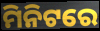
ମିନିଟରେ